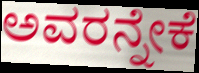
ಅವರನ್ನೇಕೆ